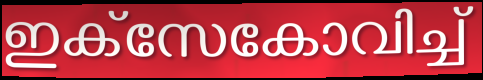
ഇക്‌സേകോവിച്ച്